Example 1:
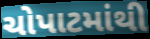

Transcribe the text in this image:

ચોપાટમાંથી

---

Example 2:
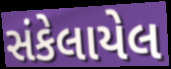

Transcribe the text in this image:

સંકેલાયેલ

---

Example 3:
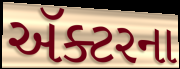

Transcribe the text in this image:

ઍક્ટરના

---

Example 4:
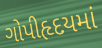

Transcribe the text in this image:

ગોપીહૃદયમાં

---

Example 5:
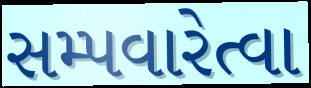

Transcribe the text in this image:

સમ્પવારેત્વા